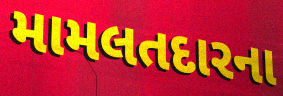
મામલતદારના